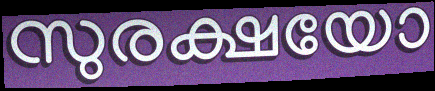
സുരക്ഷയോ